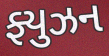
ફ્યુઝન